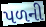
પળની